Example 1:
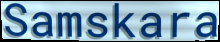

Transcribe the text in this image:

Samskara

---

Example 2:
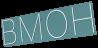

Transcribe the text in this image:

BMOH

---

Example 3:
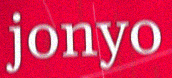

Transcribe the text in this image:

jonyo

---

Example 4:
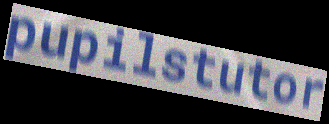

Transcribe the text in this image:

pupilstutor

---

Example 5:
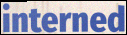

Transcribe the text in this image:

interned